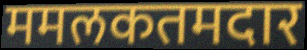
ममलकतमदार